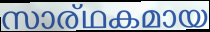
സാര്ഥകമായ